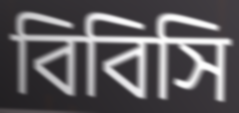
বিবিসি